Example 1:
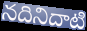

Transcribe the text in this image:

నదినిదాటి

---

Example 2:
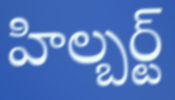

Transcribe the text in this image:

హిల్బర్ట్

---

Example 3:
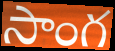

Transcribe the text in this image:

సాంగ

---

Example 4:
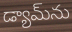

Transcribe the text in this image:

డ్యామ్‌ను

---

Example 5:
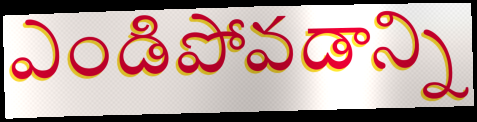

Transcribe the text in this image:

ఎండిపోవడాన్ని